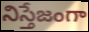
నిస్తేజంగా